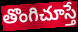
తొంగిచూస్తే